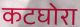
कटघोरा